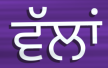
ਵੱਲਾਂ